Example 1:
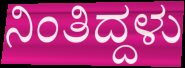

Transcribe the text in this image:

ನಿಂತಿದ್ದಳು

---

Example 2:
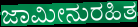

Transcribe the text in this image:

ಜಾಮೀನುರಹಿತ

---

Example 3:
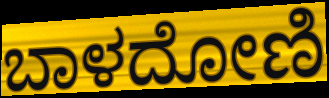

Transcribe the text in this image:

ಬಾಳದೋಣಿ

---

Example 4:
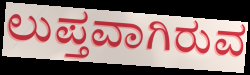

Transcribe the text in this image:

ಲುಪ್ತವಾಗಿರುವ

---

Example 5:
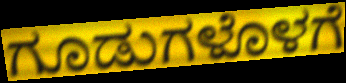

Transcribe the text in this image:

ಗೂಡುಗಳೊಳಗೆ